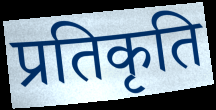
प्रतिकृति